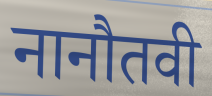
नानौतवी